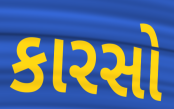
કારસો